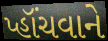
પ્હૉંચવાને